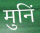
मुनिं